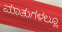
ಮಾತುಗಳಲ್ಲೂ